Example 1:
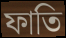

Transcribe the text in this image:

ফাতি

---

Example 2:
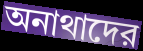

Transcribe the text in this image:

অনাথাদের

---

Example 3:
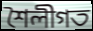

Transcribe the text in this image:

শৈলীগত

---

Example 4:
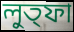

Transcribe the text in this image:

লুত্ফা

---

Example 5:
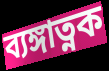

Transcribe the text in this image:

ব্যঙ্গাত্নক